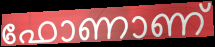
ഫോണാണ്